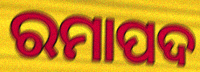
ରମାପଦ